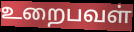
உறைபவள்